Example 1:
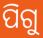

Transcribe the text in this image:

ପିଗୁ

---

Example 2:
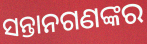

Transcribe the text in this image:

ସନ୍ତାନଗଣଙ୍କର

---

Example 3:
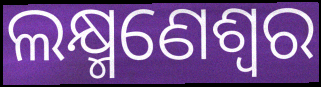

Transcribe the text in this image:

ଲକ୍ଷ୍ମଣେଶ୍ୱର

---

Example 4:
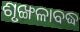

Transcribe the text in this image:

ଶୃଙ୍ଖଳାବଦ୍ଧ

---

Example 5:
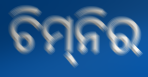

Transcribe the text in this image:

ଚିମ୍‌ନିର